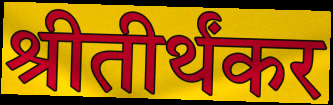
श्रीतीर्थंकर